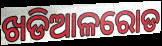
ଖଡିଆଳରୋଡ